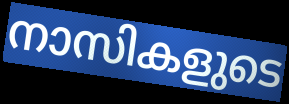
നാസികളുടെ